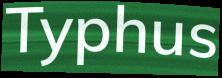
Typhus